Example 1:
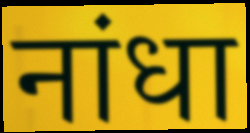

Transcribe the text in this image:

नांधा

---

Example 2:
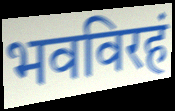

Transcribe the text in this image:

भवविरहं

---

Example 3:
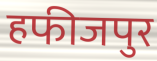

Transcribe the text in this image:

हफीजपुर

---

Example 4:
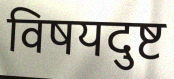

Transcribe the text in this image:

विषयदुष्ट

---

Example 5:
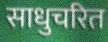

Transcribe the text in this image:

साधुचरित